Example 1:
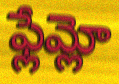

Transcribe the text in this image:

ఫ్లేమ్లో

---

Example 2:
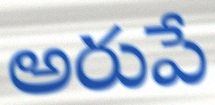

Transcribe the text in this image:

అరుపే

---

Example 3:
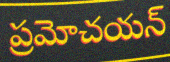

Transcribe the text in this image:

ప్రమోచయన్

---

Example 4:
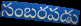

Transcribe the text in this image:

సంబరపడు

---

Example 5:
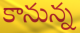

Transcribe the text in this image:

కానున్న